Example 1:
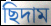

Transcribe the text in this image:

ছিদাম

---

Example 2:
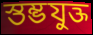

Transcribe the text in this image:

স্তম্ভযুক্ত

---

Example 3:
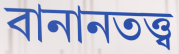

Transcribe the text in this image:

বানানতত্ত্ব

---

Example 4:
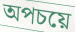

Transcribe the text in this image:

অপচয়ে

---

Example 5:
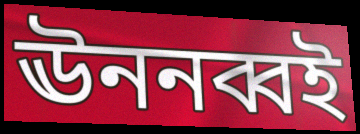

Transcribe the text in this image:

ঊননব্বই